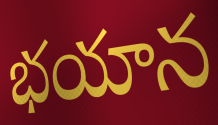
భయాన